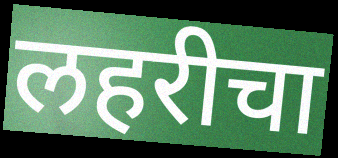
लहरीचा